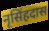
नृसिंहदास